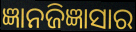
ଜ୍ଞାନଜିଜ୍ଞାସାର